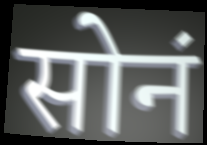
सोनं